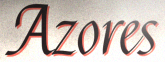
Azores